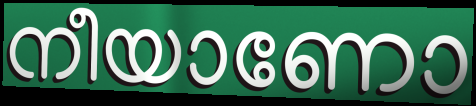
നീയാണോ